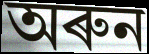
অৰুন